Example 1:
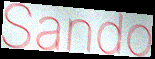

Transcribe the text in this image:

Sando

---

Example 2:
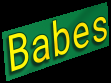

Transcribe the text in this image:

Babes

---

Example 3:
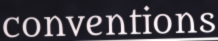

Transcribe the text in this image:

conventions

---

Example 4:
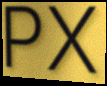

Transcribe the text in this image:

PX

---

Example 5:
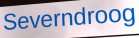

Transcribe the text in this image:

Severndroog